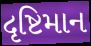
દૃષ્ટિમાન